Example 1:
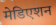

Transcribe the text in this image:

मेडिएशन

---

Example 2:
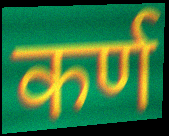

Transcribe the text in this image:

कर्ण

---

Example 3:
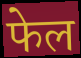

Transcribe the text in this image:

फेल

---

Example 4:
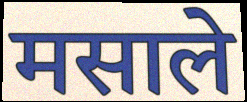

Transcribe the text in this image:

मसाले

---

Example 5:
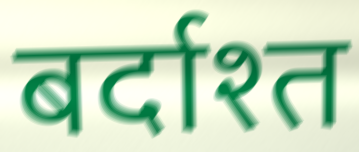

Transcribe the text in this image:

बर्दाश्त